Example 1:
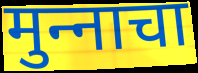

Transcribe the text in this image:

मुन्नाचा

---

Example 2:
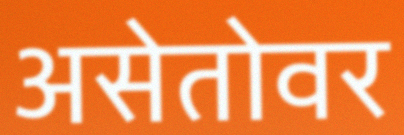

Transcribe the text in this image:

असेतोवर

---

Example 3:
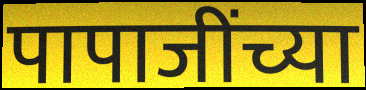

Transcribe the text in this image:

पापाजींच्या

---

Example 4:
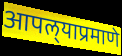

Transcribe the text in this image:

आपल्याप्रमाणे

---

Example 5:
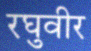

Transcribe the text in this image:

रघुवीर